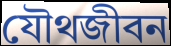
যৌথজীবন